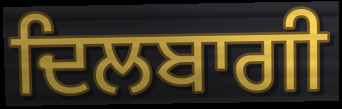
ਦਿਲਬਾਗੀ